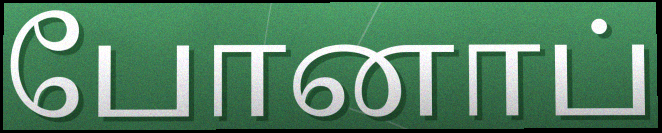
போனாப்